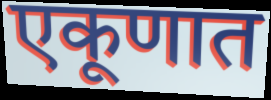
एकूणात